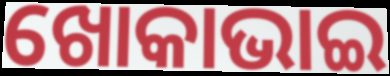
ଖୋକାଭାଇ